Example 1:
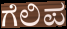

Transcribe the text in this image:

ಗೆಲಿಪ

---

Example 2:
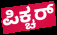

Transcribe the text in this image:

ಪಿಕ್ಚರ್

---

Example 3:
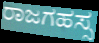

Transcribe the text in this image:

ರಾಜಗಹಸ್ಸ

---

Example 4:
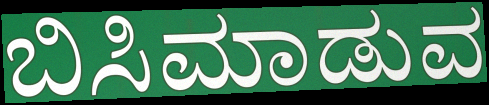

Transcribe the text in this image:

ಬಿಸಿಮಾಡುವ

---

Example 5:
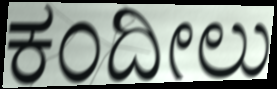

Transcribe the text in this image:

ಕಂದೀಲು